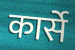
कार्से